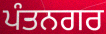
ਪੰਤਨਗਰ